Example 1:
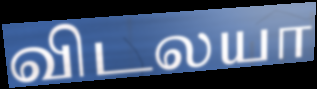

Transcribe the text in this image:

விடலயா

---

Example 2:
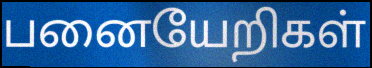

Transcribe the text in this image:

பனையேறிகள்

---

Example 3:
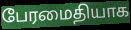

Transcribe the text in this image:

பேரமைதியாக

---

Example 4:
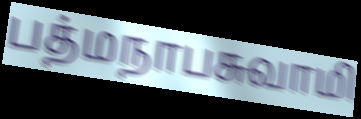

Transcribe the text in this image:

பத்மநாபசுவாமி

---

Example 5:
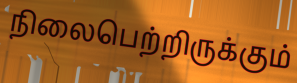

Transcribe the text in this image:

நிலைபெற்றிருக்கும்